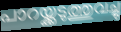
പാറയ്ക്കടുത്തുവച്ചു